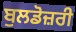
ਬੁਲਡੋਜ਼ਰੀ